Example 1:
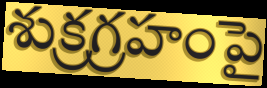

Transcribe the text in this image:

శుక్రగ్రహంపై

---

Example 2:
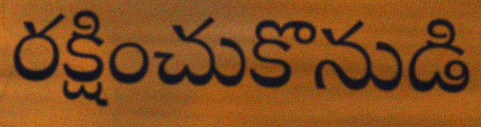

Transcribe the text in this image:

రక్షించుకొనుడి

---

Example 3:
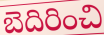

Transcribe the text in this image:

బెదిరించి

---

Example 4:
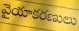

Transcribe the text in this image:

వైయాకరణులు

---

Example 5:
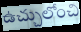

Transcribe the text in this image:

ఉచ్చులోంచి